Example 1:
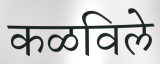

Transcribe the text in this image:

कळविले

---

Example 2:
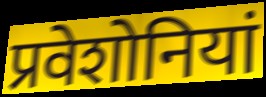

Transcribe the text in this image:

प्रवेशोनियां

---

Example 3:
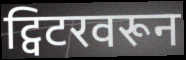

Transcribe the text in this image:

ट्विटरवरून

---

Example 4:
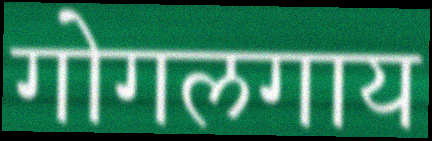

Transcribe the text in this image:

गोगलगाय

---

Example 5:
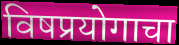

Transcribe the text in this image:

विषप्रयोगाचा